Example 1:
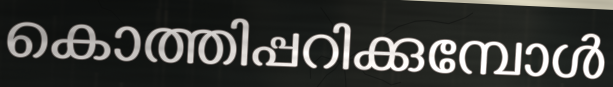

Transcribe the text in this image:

കൊത്തിപ്പറിക്കുമ്പോൾ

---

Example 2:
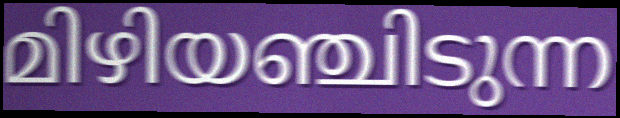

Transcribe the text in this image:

മിഴിയഞ്ചിടുന്ന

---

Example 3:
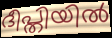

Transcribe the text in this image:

ദീപ്തിയിൽ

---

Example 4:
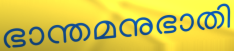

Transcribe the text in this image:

ഭാന്തമനുഭാതി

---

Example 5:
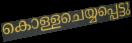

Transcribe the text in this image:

കൊള്ളചെയ്യപ്പെട്ടു